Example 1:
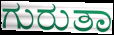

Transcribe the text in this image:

ಗುರುತಾ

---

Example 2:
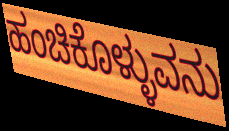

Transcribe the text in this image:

ಹಂಚಿಕೊಳ್ಳುವನು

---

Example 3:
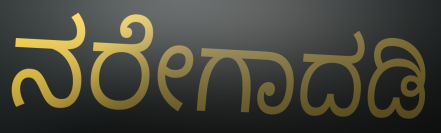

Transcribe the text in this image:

ನರೇಗಾದಡಿ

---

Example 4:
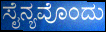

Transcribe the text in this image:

ಸೈನ್ಯವೊಂದು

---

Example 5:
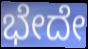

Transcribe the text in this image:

ಭೇದೇ